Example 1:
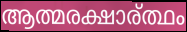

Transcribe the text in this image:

ആത്മരക്ഷാര്ത്ഥം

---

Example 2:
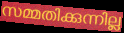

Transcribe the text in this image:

സമ്മതിക്കുന്നില്ല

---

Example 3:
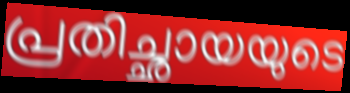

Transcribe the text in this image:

പ്രതിച്ഛായയുടെ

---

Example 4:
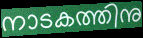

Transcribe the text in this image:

നാടകത്തിനു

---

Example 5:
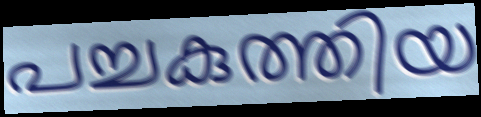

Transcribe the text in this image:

പച്ചകുത്തിയ